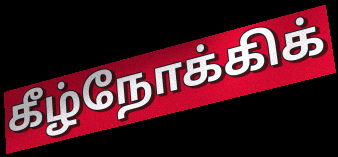
கீழ்நோக்கிக்